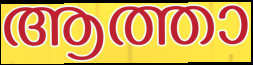
ആത്താ